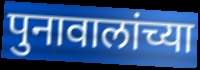
पुनावालांच्या